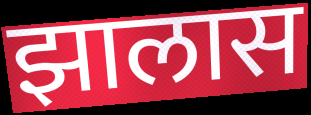
झालास